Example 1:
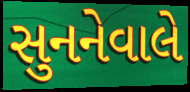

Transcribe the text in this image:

સુનનેવાલે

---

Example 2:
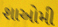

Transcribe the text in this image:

શાઓમી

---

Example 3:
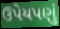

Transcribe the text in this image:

ઉપેયપણું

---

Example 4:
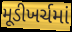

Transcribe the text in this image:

મૂડીખર્ચમાં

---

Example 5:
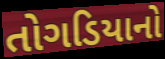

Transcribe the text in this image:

તોગડિયાનો